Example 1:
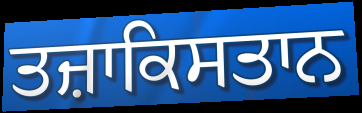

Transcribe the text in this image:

ਤਜ਼ਾਕਿਸਤਾਨ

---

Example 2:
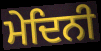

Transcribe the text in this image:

ਮੇਦਿਨੀ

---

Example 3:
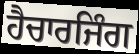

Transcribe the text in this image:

ਹੈਚਾਰਜਿੰਗ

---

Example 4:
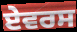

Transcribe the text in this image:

ਏਵਰਸ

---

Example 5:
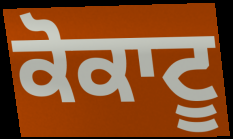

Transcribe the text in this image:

ਕੋਕਾਟੂ